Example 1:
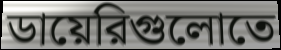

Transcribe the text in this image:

ডায়েরিগুলোতে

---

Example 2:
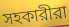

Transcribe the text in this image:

সহকারীরা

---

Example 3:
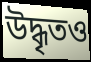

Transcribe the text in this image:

উদ্ধৃতও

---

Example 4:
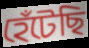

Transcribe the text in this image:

হেঁটেছি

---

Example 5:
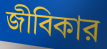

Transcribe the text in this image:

জীবিকার